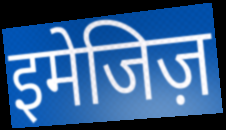
इमेजिज़